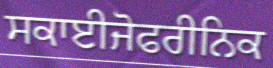
ਸਕਾਈਜੋਫਰੀਨਿਕ